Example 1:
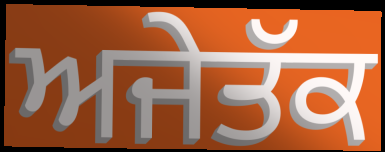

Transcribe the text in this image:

ਅਜੇਤੱਕ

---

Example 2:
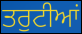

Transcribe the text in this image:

ਤਰੁਟੀਆਂ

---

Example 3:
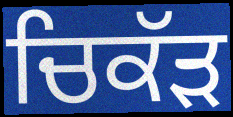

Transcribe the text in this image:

ਚਿਕੱੜ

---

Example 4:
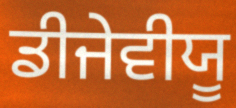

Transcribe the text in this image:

ਡੀਜੇਵੀਯੂ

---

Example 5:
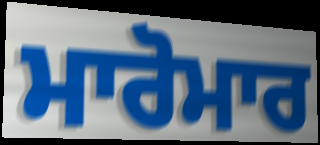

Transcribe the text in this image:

ਮਾਰੋਮਾਰ